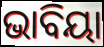
ଭାବିୟା